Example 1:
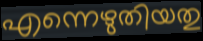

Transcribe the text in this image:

എന്നെഴുതിയതു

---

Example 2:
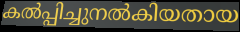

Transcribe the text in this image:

കൽപ്പിച്ചുനൽകിയതായ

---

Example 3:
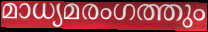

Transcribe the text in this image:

മാധ്യമരംഗത്തും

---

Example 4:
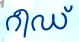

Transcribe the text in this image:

റീഡ്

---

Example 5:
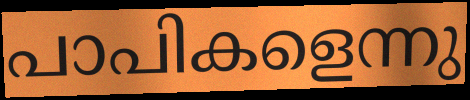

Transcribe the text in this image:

പാപികളെന്നു